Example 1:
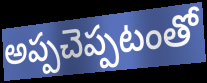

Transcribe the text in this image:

అప్పచెప్పటంతో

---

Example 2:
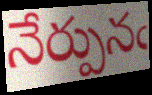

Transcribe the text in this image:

నేర్పునఁ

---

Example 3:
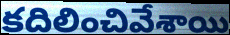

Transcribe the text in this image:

కదిలించివేశాయి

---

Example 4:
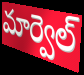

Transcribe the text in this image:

మార్వెల్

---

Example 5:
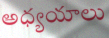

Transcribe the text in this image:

అధ్యయాలు